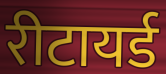
रीटायर्ड